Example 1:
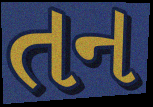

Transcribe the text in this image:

તન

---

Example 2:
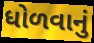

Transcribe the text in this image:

ધોળવાનું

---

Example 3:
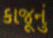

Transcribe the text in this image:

કાજૂનું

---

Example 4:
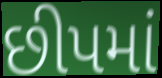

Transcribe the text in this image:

છીપમાં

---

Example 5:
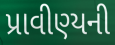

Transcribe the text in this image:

પ્રાવીણ્યની